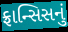
ફ્રાન્સિસનું